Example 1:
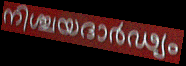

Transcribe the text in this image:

നിശ്ചയദാർഢ്യം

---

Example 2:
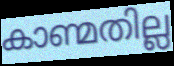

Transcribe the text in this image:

കാണ്മതില്ല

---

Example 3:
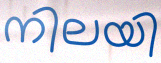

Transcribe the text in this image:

നിലയി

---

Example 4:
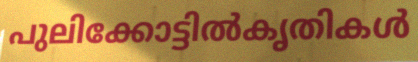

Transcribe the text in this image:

പുലിക്കോട്ടിൽകൃതികൾ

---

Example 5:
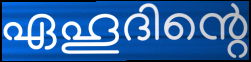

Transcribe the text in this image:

ഏഹൂദിന്റെ